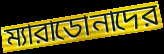
ম্যারাডোনাদের